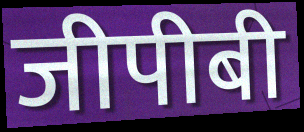
जीपीबी